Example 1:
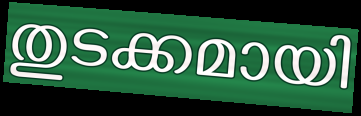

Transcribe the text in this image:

തുടക്കമായി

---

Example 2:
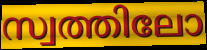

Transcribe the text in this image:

സ്വത്തിലോ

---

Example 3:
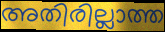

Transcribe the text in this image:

അതിരില്ലാത്ത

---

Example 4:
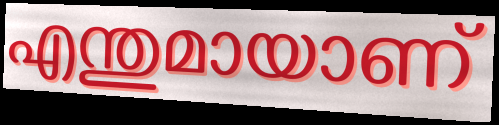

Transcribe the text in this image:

എന്തുമായാണ്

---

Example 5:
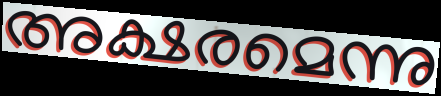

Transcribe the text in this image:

അക്ഷരമെന്നു